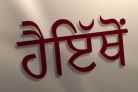
ਹੈਇੱਥੋਂ